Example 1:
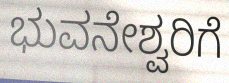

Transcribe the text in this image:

ಭುವನೇಶ್ವರಿಗೆ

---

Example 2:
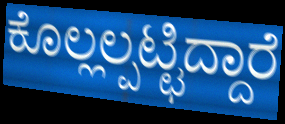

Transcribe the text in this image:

ಕೊಲ್ಲಲ್ಪಟ್ಟಿದ್ದಾರೆ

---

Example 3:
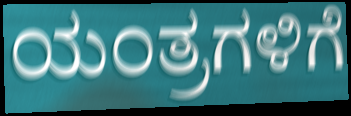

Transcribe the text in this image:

ಯಂತ್ರಗಳಿಗೆ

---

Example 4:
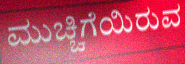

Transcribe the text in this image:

ಮುಚ್ಚಿಗೆಯಿರುವ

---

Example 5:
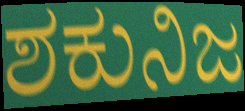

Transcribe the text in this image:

ಶಕುನಿಜ